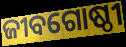
ଜୀବଗୋଷ୍ଠୀ